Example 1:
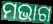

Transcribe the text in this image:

ମଭାଗ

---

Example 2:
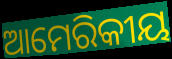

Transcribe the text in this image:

ଆମେରିକୀୟ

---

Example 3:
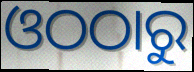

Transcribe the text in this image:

ଓଠଠାରୁ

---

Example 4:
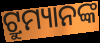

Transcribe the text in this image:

ଟ୍ରୁମ୍ୟାନଙ୍କ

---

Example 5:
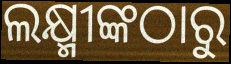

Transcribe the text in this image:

ଲକ୍ଷ୍ମୀଙ୍କଠାରୁ